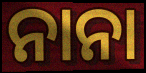
ନାନା